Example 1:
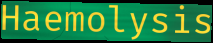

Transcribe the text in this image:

Haemolysis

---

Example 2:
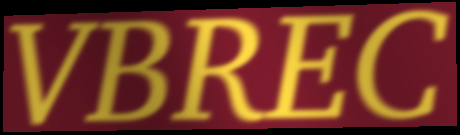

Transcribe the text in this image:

VBREC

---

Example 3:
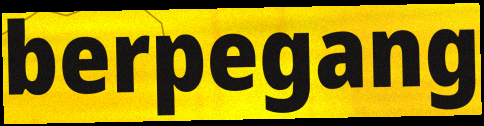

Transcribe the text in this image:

berpegang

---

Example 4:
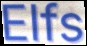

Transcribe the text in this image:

Elfs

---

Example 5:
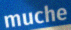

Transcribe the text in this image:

muche